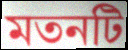
মতনটি